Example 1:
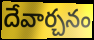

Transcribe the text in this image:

దేవార్చనం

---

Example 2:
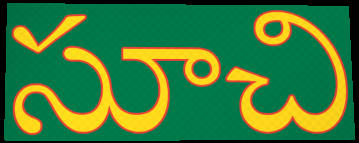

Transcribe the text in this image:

సూచి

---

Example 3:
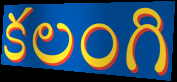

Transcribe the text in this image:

కలంగి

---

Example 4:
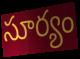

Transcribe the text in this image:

సూర్యం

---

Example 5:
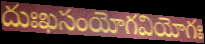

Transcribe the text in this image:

దుఃఖసంయోగవియోగః